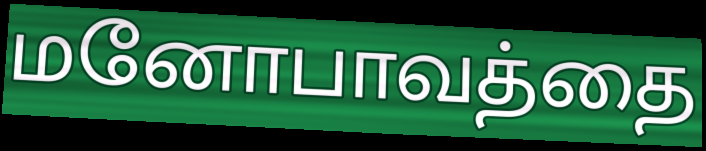
மனோபாவத்தை